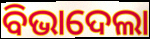
ବିଭାଦେଲା